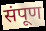
संपूण